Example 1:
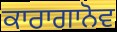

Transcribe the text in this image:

ਕਾਰਾਗਾਨੋਵ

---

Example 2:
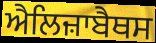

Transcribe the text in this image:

ਐਲਿਜ਼ਾਬੈਥਸ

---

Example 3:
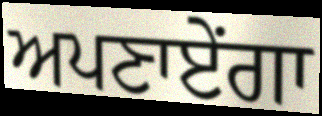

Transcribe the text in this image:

ਅਪਣਾਏਂਗਾ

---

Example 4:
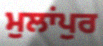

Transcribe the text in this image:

ਮੁਲਾਂਪੁਰ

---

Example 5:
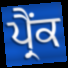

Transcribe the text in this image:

ਪ੍ਰੈਂਕ